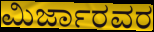
ಮಿರ್ಜಾರವರ